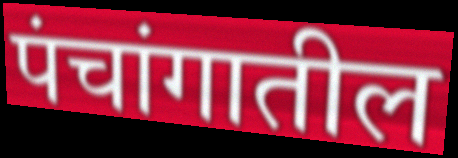
पंचांगातील